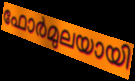
ഫോർമുലയായി